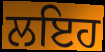
ਲਇਹ